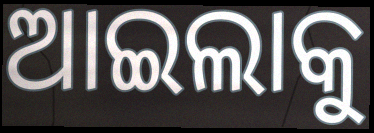
ଆଇଲାକୁ